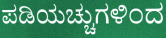
ಪಡಿಯಚ್ಚುಗಳಿಂದ